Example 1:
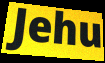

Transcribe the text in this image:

Jehu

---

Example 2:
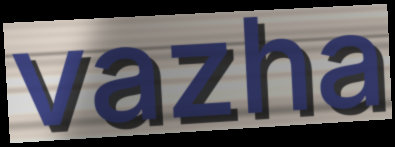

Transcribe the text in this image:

vazha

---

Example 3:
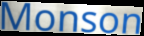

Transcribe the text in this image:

Monson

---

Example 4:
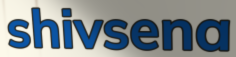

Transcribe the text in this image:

shivsena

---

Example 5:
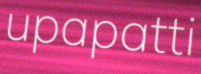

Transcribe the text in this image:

upapatti